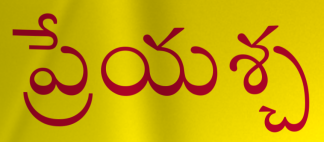
ప్రేయశ్చ